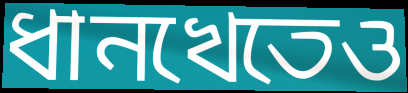
ধানখেতেও